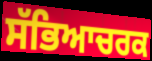
ਸੱਭਿਆਚਰਕ